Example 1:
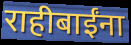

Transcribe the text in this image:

राहीबाईंना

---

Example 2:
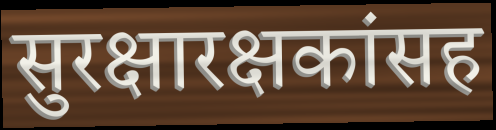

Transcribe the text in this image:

सुरक्षारक्षकांसह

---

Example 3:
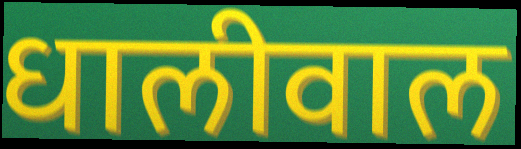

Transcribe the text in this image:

धालीवाल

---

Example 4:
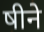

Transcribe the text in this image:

षीने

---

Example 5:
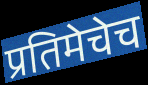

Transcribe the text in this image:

प्रतिमेचेच